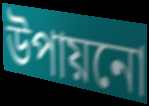
উপায়নো